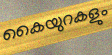
കൈയുറകളും